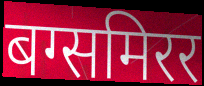
बग्समिरर